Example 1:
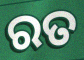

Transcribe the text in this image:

ରତ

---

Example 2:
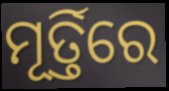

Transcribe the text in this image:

ମୂର୍ତ୍ତିରେ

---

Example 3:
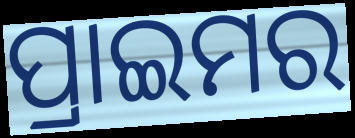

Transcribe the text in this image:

ପ୍ରାଇମର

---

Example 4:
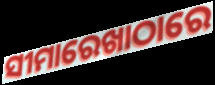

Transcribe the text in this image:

ସୀମାରେଖାଠାରେ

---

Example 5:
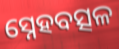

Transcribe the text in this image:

ସ୍ନେହବତ୍ସଳ